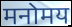
मनोमय